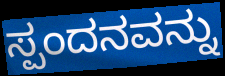
ಸ್ಪಂದನವನ್ನು